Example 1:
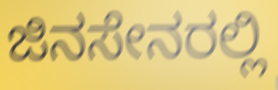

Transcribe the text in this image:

ಜಿನಸೇನರಲ್ಲಿ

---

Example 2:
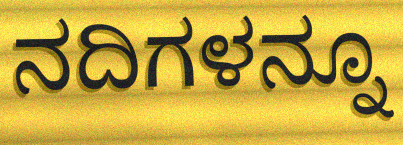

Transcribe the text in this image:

ನದಿಗಳನ್ನೂ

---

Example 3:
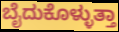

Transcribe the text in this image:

ಬೈದುಕೊಳ್ಳುತ್ತಾ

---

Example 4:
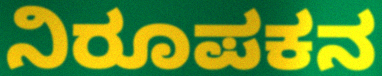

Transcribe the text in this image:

ನಿರೂಪಕನ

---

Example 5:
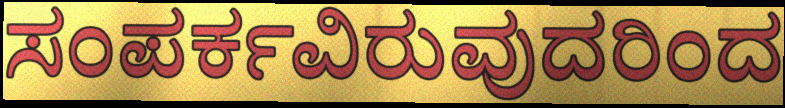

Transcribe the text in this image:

ಸಂಪರ್ಕವಿರುವುದರಿಂದ